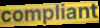
compliant